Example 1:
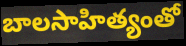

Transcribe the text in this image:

బాలసాహిత్యంతో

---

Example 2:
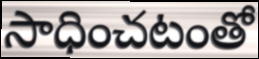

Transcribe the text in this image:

సాధించటంతో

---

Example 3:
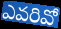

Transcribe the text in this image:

ఎవరివో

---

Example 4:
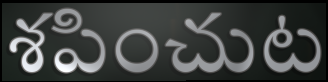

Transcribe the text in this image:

శపించుట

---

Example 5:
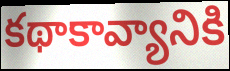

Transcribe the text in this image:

కథాకావ్యానికి